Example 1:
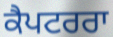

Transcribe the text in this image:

ਕੈਪਟਰਰਾ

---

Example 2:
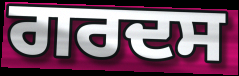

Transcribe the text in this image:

ਗਰਦਸ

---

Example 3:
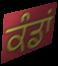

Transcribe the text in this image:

ਕੰਡਾਂ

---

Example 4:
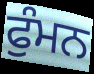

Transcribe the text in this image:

ਫੁੰਮਨ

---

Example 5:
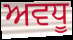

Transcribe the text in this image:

ਅਵਧੂ